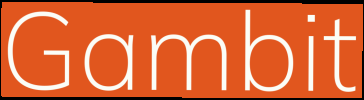
Gambit